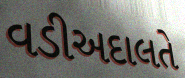
વડીઅદાલતે